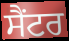
ਸੈਂਟਰ